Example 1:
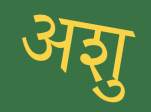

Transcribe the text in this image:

अशु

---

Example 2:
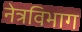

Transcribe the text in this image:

नेत्रविभाग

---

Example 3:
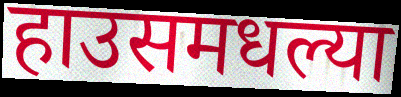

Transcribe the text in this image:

हाउसमधल्या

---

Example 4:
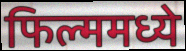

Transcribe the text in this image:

फिल्ममध्ये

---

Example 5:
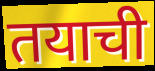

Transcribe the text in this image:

तयाची